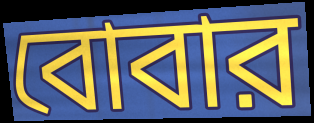
বোবার